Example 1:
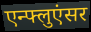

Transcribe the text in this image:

एन्फ्लुएंसर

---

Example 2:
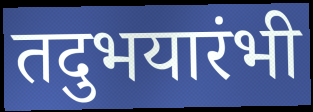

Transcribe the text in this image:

तदुभयारंभी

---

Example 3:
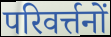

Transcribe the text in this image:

परिवर्त्तनों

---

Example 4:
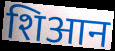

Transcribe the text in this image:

शिआन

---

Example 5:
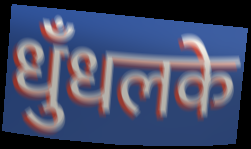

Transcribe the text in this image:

धुँधलके